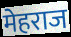
मेहराज